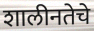
शालीनतेचे